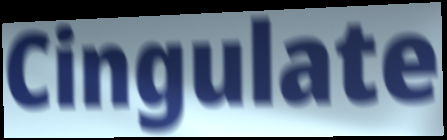
Cingulate